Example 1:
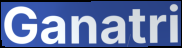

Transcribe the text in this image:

Ganatri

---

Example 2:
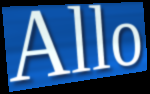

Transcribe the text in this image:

Allo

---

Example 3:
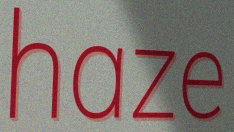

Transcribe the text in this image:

haze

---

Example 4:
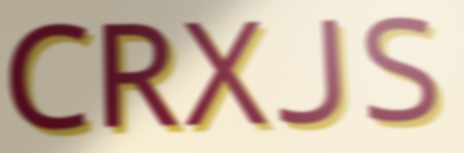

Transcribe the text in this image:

CRXJS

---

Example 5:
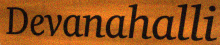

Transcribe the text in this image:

Devanahalli